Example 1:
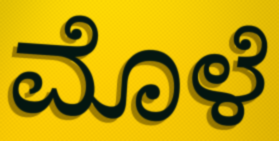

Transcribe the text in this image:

ಮೊಳೆ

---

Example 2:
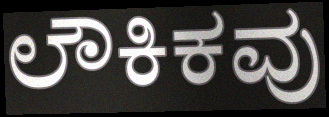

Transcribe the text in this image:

ಲೌಕಿಕವು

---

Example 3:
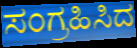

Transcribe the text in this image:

ಸಂಗ್ರಹಿಸಿದ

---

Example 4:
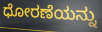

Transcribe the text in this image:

ಧೋರಣೆಯನ್ನು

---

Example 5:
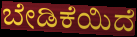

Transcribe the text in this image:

ಬೇಡಿಕೆಯಿದೆ